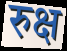
रुक्ष